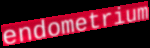
endometrium